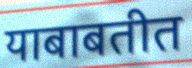
याबाबतीत